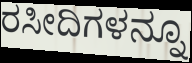
ರಸೀದಿಗಳನ್ನೂ